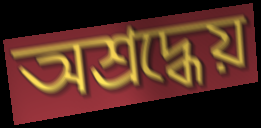
অশ্রদ্ধেয়